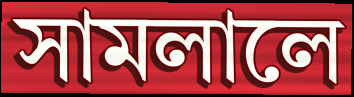
সামলালে